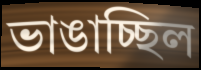
ভাঙাচ্ছিল